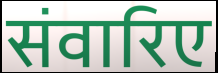
संवारिए